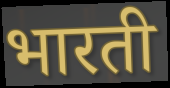
भारती